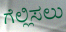
ಗೆಲ್ಲಿಸಲು